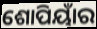
ଶୋପିୟାଁର